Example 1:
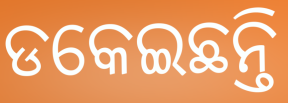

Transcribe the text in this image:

ଡକେଇଛନ୍ତି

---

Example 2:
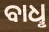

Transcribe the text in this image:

ବାଧୢ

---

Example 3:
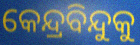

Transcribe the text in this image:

କେନ୍ଦ୍ରବିନ୍ଦୁକୁ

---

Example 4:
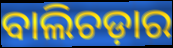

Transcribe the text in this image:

ବାଲିଚଡ଼ାର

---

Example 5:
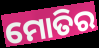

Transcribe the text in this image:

ମୋତିର